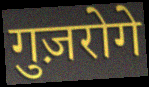
गुज़रोगे